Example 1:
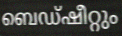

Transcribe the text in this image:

ബെഡ്ഷീറ്റും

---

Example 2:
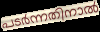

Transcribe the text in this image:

പടർന്നതിനാൽ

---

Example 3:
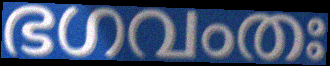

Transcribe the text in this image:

ഭഗവംതഃ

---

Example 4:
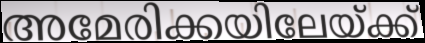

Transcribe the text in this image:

അമേരിക്കയിലേയ്ക്ക്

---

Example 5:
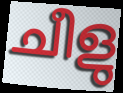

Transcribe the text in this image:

ചീളു